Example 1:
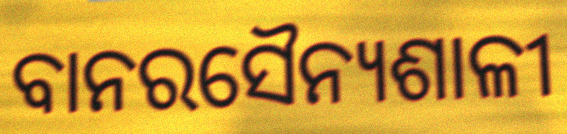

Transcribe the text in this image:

ବାନରସୈନ୍ୟଶାଳୀ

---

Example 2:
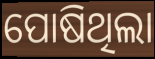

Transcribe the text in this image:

ପୋଷିଥିଲା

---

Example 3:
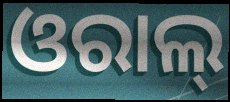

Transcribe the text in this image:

ଓରାଲ୍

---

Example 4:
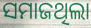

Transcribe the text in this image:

ସମାଜଥିଲା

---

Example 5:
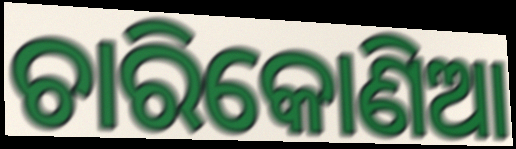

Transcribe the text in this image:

ଚାରିକୋଣିଆ